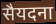
सैयदना